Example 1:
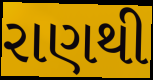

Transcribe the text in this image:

રાણથી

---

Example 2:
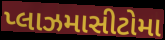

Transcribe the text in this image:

પ્લાઝમાસીટોમા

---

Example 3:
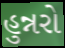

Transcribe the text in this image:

હુન્નરો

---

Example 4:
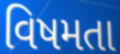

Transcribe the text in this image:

વિષમતા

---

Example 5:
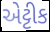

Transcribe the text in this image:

એટ્ટીક